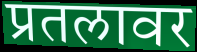
प्रतलावर